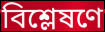
বিশ্লেষণে